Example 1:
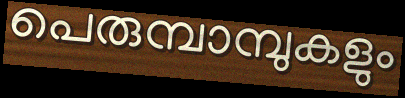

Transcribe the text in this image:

പെരുമ്പാമ്പുകളും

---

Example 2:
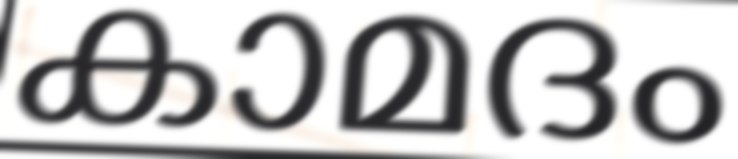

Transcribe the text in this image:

കാമദം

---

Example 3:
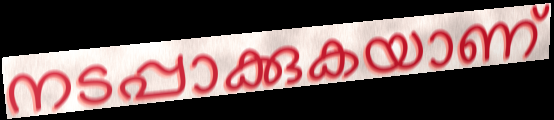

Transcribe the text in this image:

നടപ്പാക്കുകയാണ്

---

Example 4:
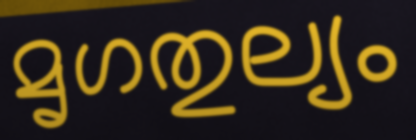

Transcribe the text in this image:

മൃഗതുല്യം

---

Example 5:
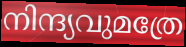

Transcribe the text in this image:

നിന്ദ്യവുമത്രേ